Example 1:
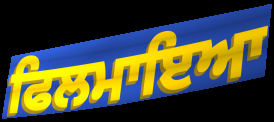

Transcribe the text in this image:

ਫਿਲਮਾਇਆ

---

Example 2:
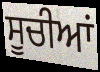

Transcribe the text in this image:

ਸੂਚੀਆਂ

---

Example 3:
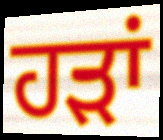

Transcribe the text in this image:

ਹੜਾਂ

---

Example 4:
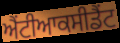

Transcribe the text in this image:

ਐਂਟੀਆਕਸੀਡੈਂਟ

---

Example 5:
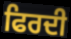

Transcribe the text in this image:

ਫਿਰਦੀ